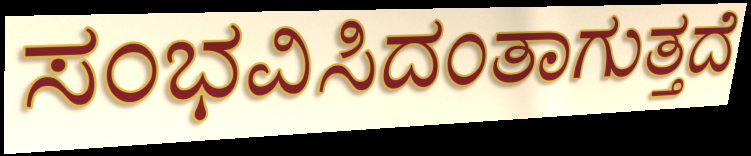
ಸಂಭವಿಸಿದಂತಾಗುತ್ತದೆ